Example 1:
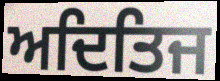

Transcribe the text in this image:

ਅਦਿਤਿਜ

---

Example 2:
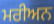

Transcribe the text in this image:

ਮਰੀਅਨ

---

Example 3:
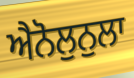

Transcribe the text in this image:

ਐਨੋਲੁਨੁਲਾ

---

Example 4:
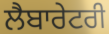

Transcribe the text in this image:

ਲੈਬਾਰੇਟਰੀ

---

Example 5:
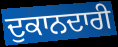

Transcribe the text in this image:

ਦੁਕਾਨਦਾਰੀ